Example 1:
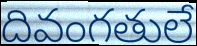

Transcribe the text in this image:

దివంగతులే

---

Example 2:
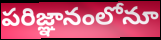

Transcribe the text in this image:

పరిజ్ఞానంలోనూ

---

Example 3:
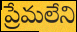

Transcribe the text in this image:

ప్రేమలేని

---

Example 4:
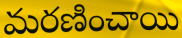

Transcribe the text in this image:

మరణించాయి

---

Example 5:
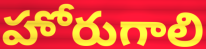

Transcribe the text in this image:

హోరుగాలి